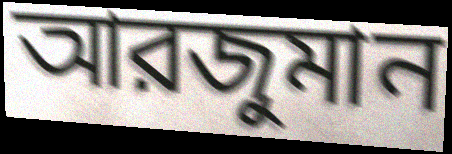
আরজুমান